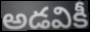
అడవికీ